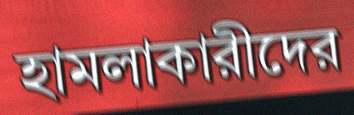
হামলাকারীদের